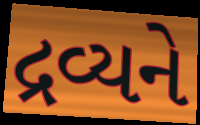
દ્રવ્યને